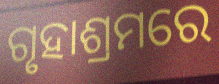
ଗୃହାଶ୍ରମରେ